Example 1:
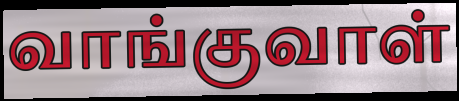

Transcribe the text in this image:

வாங்குவாள்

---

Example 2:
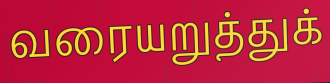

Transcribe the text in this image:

வரையறுத்துக்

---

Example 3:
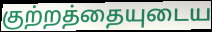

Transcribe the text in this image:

குற்றத்தையுடைய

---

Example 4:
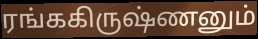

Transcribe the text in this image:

ரங்ககிருஷ்ணனும்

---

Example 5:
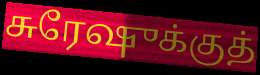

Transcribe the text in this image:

சுரேஷுக்குத்